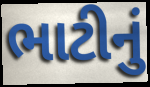
ભાટીનું